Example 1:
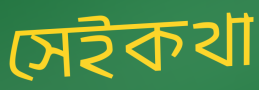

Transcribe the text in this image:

সেইকথা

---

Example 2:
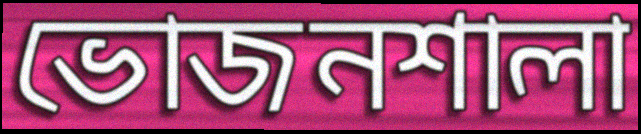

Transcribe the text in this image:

ভোজনশালা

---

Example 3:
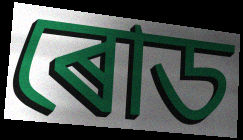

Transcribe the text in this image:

ৰোড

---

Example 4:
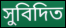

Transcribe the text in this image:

সুবিদিত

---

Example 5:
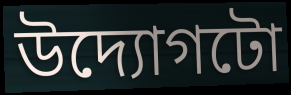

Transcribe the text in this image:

উদ্যোগটো